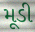
મૂડી